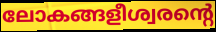
ലോകങ്ങളീശ്വരന്റെ